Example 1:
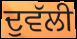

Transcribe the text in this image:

ਦੁਵੱਲੀ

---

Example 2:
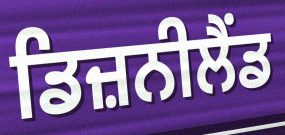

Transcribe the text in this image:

ਡਿਜ਼ਨੀਲੈਂਡ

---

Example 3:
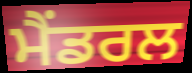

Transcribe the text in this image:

ਮੈਂਡਰਲ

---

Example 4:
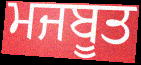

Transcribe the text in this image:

ਮਜਬੂਤ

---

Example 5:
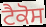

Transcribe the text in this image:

ਟੈਕੋਸ